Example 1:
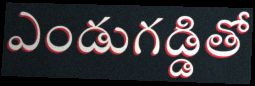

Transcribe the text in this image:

ఎండుగడ్డితో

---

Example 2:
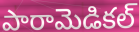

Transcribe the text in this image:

పారామెడికల్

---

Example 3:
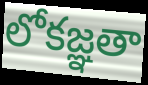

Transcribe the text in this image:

లోకజ్ఞతా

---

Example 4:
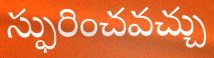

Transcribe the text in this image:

స్ఫురించవచ్చు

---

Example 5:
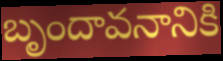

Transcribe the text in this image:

బృందావనానికి